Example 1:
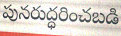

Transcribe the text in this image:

పునరుద్ధరించబడి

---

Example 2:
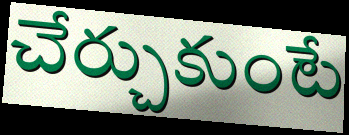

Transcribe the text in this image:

చేర్చుకుంటే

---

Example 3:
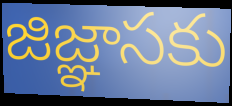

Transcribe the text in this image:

జిజ్ఞాసకు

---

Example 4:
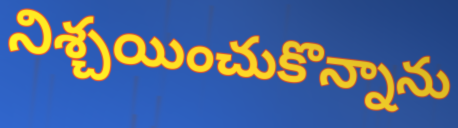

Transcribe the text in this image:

నిశ్చయించుకొన్నాను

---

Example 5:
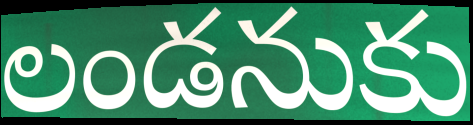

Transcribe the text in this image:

లండనుకు